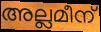
അല്ലമീന്